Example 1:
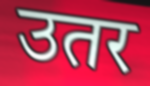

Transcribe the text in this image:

उतर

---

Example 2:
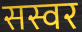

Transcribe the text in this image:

सस्वर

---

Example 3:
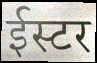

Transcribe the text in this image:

ईस्टर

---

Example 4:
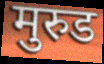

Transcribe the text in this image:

मुरुड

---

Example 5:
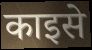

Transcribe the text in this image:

काइसे